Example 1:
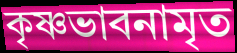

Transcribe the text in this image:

কৃষ্ণভাবনামৃত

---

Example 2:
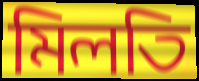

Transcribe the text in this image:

মিলতি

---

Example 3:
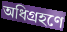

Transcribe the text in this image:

অধিগ্রহণে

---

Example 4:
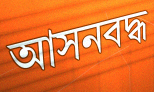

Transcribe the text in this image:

আসনবদ্ধ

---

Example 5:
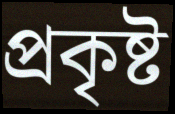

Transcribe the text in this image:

প্রকৃষ্ট